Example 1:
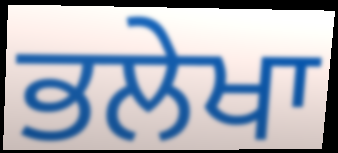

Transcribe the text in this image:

ਭਲੇਖਾ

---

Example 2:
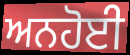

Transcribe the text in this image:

ਅਨਹੋਈ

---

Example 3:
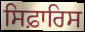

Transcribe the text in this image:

ਸਿਫ਼ਾਰਿਸ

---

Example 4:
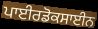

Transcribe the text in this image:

ਪਾਈਰਡੋਕਸਾਈਨ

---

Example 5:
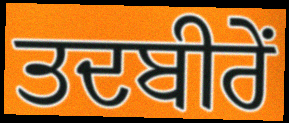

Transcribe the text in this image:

ਤਦਬੀਰੇਂ